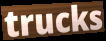
trucks